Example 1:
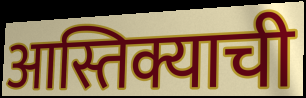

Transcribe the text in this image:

आस्तिक्याची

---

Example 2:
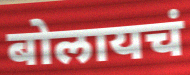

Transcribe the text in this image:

बोलायचं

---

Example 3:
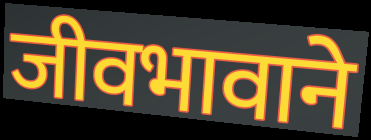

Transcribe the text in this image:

जीवभावाने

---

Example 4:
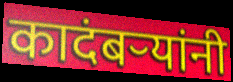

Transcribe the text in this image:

कादंबऱ्यांनी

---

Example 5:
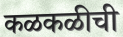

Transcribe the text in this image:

कळकळीची